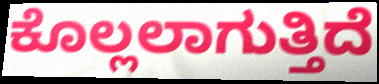
ಕೊಲ್ಲಲಾಗುತ್ತಿದೆ